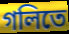
গলিতে